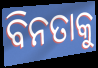
ବିନତାକୁ